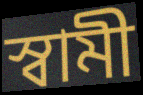
স্বামী